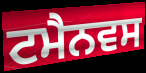
ਟਮੈਨਵਸ